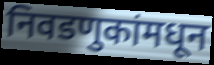
निवडणुकांमधून